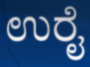
ಉರೈ